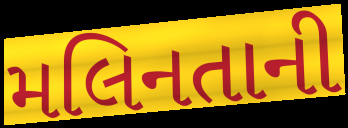
મલિનતાની